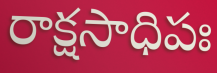
రాక్షసాధిపః